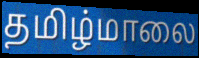
தமிழ்மாலை